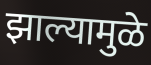
झाल्यामुळे